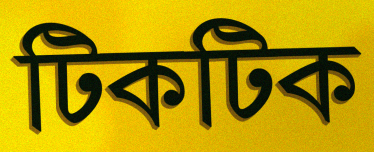
টিকটিক